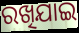
ରଖିଯାଇ